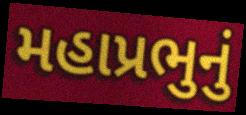
મહાપ્રભુનું